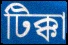
টিক্কা